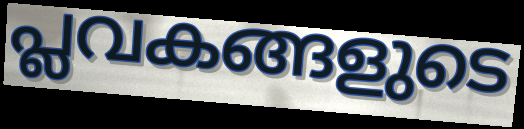
പ്ലവകങ്ങളുടെ